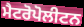
ਮੈਟਰੋਪੋਲੀਟਨ